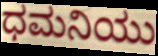
ಧಮನಿಯು